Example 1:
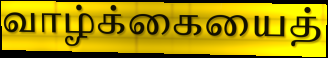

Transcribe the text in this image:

வாழ்க்கையைத்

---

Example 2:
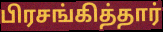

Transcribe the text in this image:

பிரசங்கித்தார்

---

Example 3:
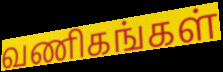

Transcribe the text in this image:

வணிகங்கள்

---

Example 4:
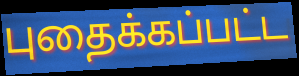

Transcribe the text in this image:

புதைக்கப்பட்ட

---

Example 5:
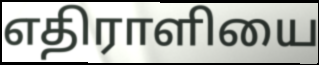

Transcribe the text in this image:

எதிராளியை